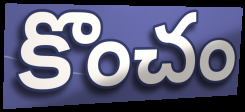
కొంచం